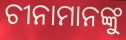
ଚୀନାମାନଙ୍କୁ